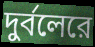
দুর্বলেরে